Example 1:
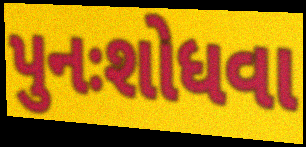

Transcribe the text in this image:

પુનઃશોધવા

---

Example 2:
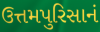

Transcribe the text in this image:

ઉત્તમપુરિસાનં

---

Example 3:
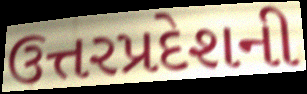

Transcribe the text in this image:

ઉત્તરપ્રદેશની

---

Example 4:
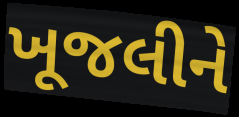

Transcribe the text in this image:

ખૂજલીને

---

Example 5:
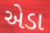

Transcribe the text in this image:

એડા